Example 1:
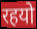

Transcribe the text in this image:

रहयो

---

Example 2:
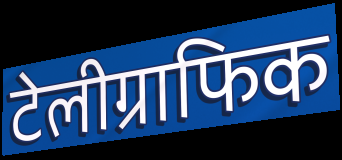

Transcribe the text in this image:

टेलीग्राफिक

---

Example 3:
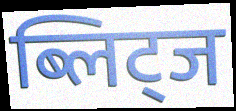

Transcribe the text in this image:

ब्लिट्ज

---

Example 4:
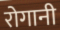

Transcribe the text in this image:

रोगानी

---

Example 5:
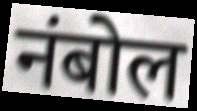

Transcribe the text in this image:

नंबोल